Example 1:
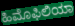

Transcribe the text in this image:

ಹಿಮೊಫಿಲಿಯಾ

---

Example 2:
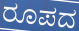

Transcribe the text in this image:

ರೂಪದ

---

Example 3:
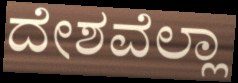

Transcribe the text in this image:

ದೇಶವೆಲ್ಲಾ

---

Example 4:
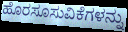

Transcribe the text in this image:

ಹೊರಸೂಸುವಿಕೆಗಳನ್ನು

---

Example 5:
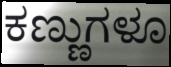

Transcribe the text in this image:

ಕಣ್ಣುಗಳೂ